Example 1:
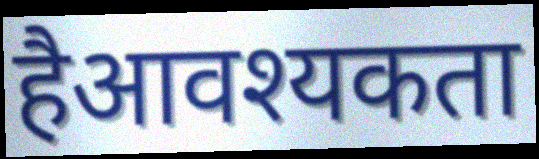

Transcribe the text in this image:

हैआवश्यकता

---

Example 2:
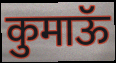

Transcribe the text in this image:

कुमाऊॅ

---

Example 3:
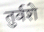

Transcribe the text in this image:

तुर्वशे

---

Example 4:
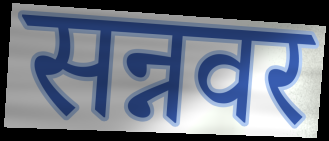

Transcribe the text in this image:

सन्नवर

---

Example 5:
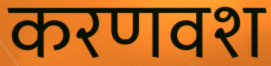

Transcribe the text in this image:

करणवश